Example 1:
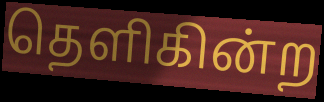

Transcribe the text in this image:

தெளிகின்ற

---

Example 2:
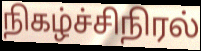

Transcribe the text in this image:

நிகழ்ச்சிநிரல்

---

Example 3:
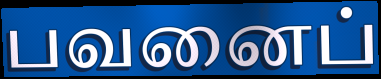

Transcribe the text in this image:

பவனைப்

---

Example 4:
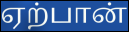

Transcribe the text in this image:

ஏற்பான்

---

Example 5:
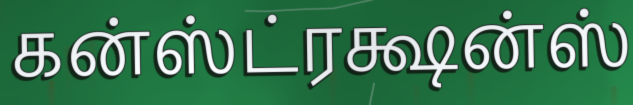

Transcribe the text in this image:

கன்ஸ்ட்ரக்ஷன்ஸ்